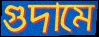
গুদামে